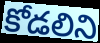
కోడలిని